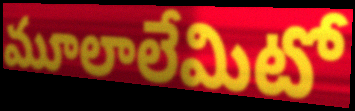
మూలాలేమిటో